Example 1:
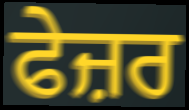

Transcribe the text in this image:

ਫੇਜ਼ਰ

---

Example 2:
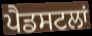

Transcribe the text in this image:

ਪੈਡਸਟਲਾਂ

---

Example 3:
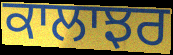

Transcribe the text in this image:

ਕਾਲਾਝਰ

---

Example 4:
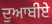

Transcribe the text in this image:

ਦੁਆਬੀਏ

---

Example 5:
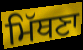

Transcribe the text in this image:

ਮਿੱਥਣਾ